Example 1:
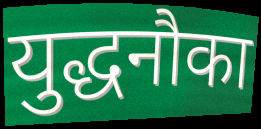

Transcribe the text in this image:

युद्धनौका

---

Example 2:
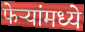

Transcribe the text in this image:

फेऱ्यांमध्ये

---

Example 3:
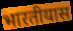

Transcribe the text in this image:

भारतीयास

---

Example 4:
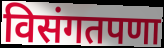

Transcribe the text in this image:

विसंगतपणा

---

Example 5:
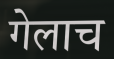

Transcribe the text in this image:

गेलाच